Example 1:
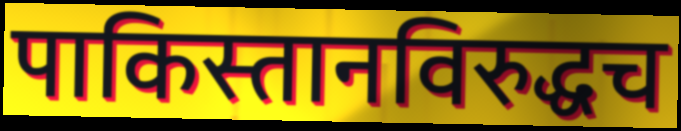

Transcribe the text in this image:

पाकिस्तानविरुद्धच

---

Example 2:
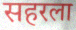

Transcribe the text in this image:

सहरला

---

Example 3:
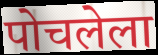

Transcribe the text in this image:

पोचलेला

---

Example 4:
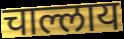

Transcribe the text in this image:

चाल्लाय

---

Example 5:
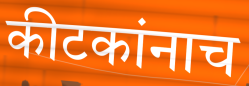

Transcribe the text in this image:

कीटकांनाच